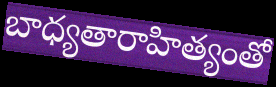
బాధ్యతారాహిత్యంతో